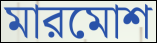
মারমোশ